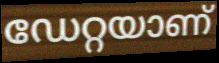
ഡേറ്റയാണ്